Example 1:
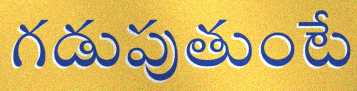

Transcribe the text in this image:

గడుపుతుంటే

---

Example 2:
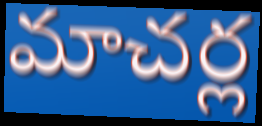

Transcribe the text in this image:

మాచర్ల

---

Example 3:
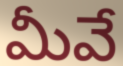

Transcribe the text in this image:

మీవే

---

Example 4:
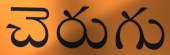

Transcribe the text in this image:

చెరుగు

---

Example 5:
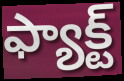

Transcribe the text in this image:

ఫ్యాక్ట్